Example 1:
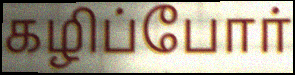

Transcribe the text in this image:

கழிப்போர்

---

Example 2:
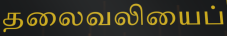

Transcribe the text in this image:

தலைவலியைப்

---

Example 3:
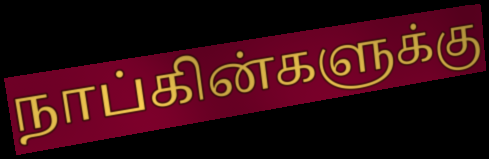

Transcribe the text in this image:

நாப்கின்களுக்கு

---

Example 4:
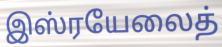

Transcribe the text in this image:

இஸ்ரயேலைத்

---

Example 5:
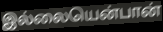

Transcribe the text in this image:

இல்லையென்பான்